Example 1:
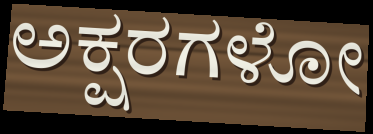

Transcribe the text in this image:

ಅಕ್ಷರಗಳೋ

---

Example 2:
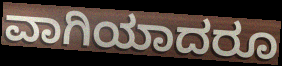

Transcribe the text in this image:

ವಾಗಿಯಾದರೂ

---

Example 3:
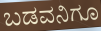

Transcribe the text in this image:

ಬಡವನಿಗೂ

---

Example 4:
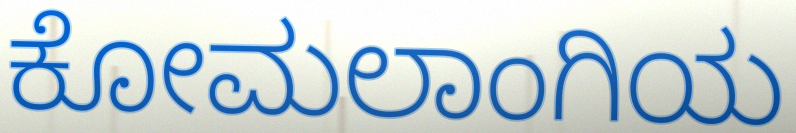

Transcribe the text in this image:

ಕೋಮಲಾಂಗಿಯ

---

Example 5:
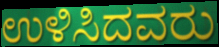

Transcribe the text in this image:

ಉಳಿಸಿದವರು